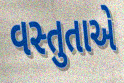
વસ્તુતાએ